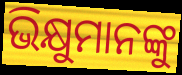
ଭିକ୍ଷୁମାନଙ୍କୁ